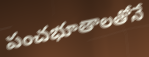
పంచభూతాలతోనే